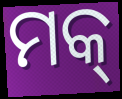
ମକ୍